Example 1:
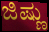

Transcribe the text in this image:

ಜಿಷ್ಣು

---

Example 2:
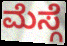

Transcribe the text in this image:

ಮೆಸ್ಗೆ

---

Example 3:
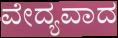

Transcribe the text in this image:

ವೇದ್ಯವಾದ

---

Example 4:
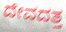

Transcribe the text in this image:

ದೇವದತ್ತ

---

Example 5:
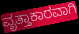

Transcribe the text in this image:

ವೃತ್ತಾಕಾರವಾಗಿ